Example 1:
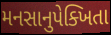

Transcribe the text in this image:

મનસાનુપેક્ખિતા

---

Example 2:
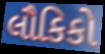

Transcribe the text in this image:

લૌકિકો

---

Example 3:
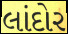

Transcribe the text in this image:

લાંદોર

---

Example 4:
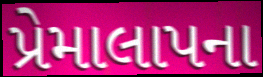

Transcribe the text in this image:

પ્રેમાલાપના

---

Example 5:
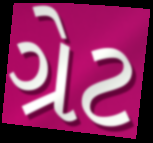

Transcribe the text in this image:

ગ્રેટ